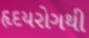
હૃદયરોગથી